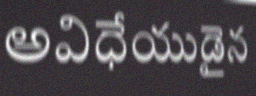
అవిధేయుడైన